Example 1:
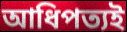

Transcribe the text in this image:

আধিপত্যই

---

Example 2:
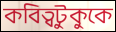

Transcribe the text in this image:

কবিত্বটুকুকে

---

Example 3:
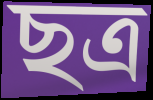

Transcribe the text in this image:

ছত্র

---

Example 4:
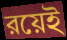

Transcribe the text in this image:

রয়েই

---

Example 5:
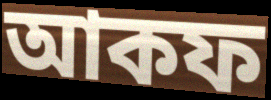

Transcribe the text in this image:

আকফ